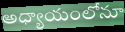
అధ్యాయంలోనూ